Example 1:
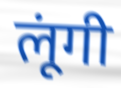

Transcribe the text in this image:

लूंगी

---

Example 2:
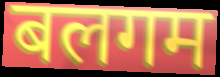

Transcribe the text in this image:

बलगम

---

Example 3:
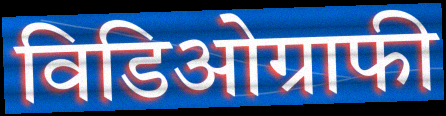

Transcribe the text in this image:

विडिओग्राफी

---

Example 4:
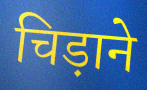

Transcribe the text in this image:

चिड़ाने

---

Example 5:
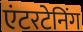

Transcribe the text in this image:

एंटरटेनिंग